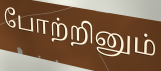
போற்றினும்